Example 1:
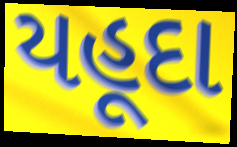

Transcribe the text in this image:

યહૂદા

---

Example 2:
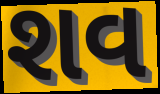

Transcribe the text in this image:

શવ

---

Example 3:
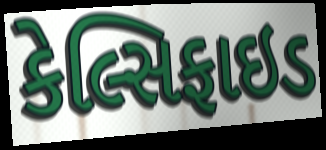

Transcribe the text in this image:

કેલ્સિફાઇડ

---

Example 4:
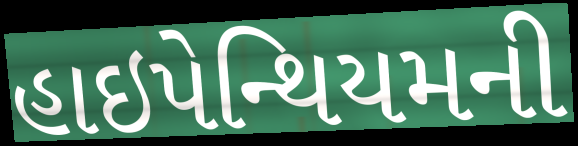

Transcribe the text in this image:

હાઇપેન્થિયમની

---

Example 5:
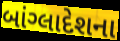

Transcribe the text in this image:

બાંગ્લાદેશના